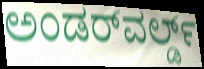
ಅಂಡರ್‌ವರ್ಲ್ಡ್